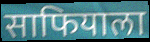
साफियाला